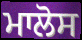
ਮਾਲੋਸ